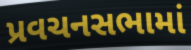
પ્રવચનસભામાં